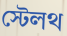
স্টেলথ